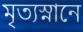
মৃত্যস্নানে